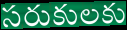
సరుకులకు